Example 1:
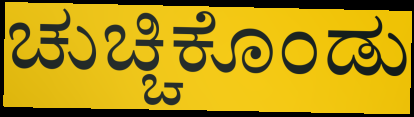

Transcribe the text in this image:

ಚುಚ್ಚಿಕೊಂಡು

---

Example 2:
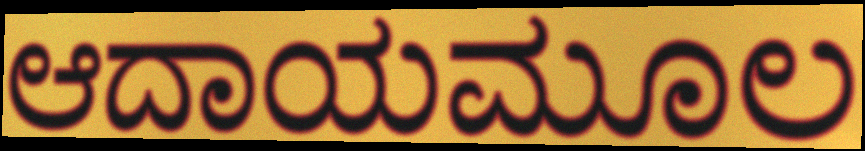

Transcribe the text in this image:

ಆದಾಯಮೂಲ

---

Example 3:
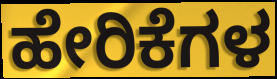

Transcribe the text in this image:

ಹೇರಿಕೆಗಳ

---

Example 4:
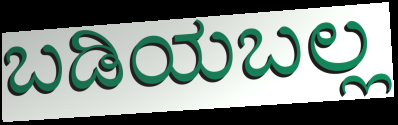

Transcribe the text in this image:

ಬಡಿಯಬಲ್ಲ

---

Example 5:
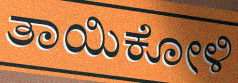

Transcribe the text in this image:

ತಾಯಿಕೋಳಿ